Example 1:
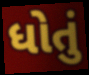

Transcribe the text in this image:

ધોતું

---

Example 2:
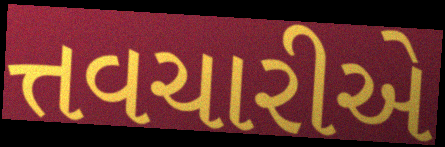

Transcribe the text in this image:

ત્તવચારીએ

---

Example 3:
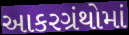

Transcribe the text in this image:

આકરગ્રંથોમાં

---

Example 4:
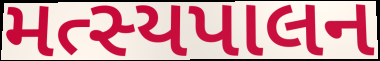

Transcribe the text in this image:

મત્સ્યપાલન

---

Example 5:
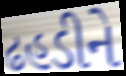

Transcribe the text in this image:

ઢહડીને